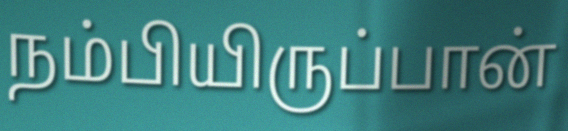
நம்பியிருப்பான்